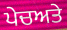
ਪੇਚਅਤੇ